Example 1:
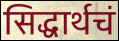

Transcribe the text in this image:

सिद्धार्थचं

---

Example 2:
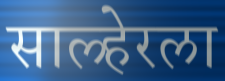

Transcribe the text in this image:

साल्हेरला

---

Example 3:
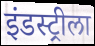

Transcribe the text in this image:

इंडस्ट्रीला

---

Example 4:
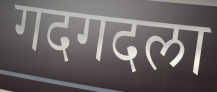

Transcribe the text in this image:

गदगदला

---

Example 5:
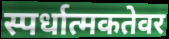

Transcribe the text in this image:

स्पर्धात्मकतेवर